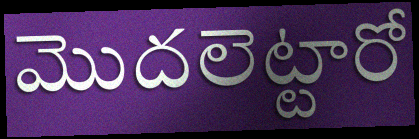
మొదలెట్టారో